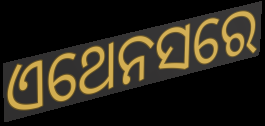
ଏଥେନସରେ